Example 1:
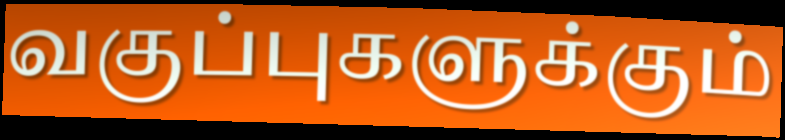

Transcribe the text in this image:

வகுப்புகளுக்கும்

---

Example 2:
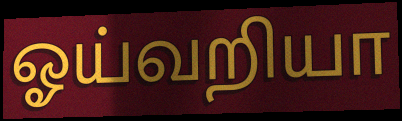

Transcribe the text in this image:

ஓய்வறியா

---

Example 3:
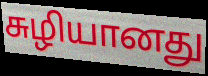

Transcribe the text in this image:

சுழியானது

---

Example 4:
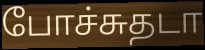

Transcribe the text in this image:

போச்சுதடா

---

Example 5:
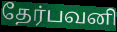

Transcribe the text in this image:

தேர்பவனி